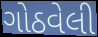
ગોઠવેલી